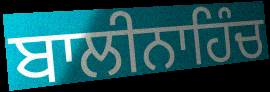
ਬਾਲੀਨਾਹਿੰਚ